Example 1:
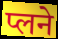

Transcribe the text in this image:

प्लने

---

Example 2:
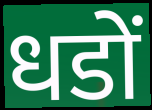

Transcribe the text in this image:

धडों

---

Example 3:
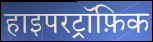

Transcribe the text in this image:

हाइपरट्रॉफ़िक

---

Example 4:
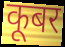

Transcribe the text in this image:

कूबर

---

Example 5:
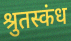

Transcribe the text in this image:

श्रुतस्कंध